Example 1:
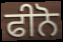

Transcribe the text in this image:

ਫੀਨੋ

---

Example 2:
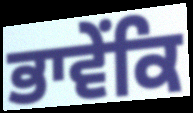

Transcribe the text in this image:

ਭਾਵੇਂਕਿ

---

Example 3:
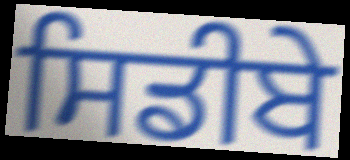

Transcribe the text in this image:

ਸਿਡੀਬੇ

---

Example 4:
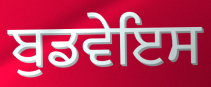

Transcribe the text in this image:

ਬੁਡਵੇਇਸ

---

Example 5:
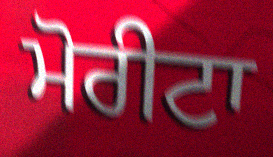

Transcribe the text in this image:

ਮੋਰੀਟਾ